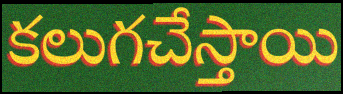
కలుగచేస్తాయి